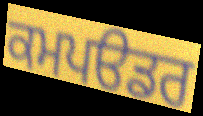
ਕਮਪੳਡਰ